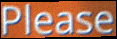
Please